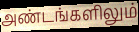
அண்டங்களிலும்